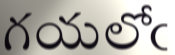
గయలోఁ